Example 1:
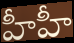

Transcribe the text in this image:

హీహీ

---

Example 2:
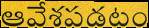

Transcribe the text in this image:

ఆవేశపడటం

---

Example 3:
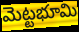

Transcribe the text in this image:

మెట్టభూమి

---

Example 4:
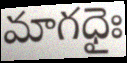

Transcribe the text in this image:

మాగధైః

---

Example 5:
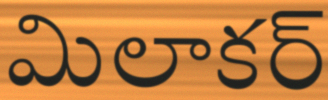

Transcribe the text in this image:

మిలాకర్